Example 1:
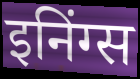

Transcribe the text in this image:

इनिंग्स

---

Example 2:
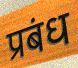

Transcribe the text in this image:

प्रबंध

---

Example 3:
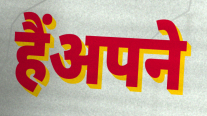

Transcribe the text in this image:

हैंअपने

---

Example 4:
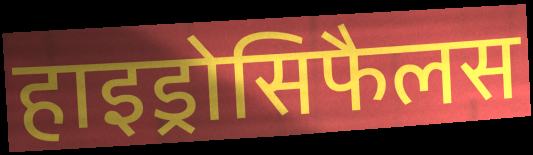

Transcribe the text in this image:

हाइड्रोसिफैलस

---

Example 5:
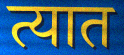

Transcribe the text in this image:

त्यात